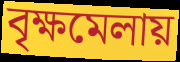
বৃক্ষমেলায়